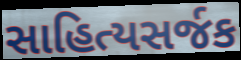
સાહિત્યસર્જક